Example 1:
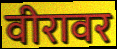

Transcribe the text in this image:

वीरावर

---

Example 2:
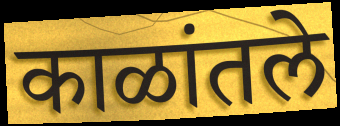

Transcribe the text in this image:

काळांतले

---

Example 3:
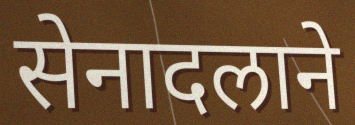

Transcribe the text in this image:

सेनादलाने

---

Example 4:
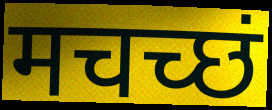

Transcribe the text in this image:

मचच्छं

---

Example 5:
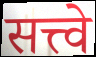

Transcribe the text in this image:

सत्त्वे